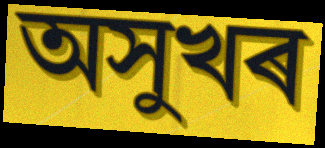
অসুখৰ